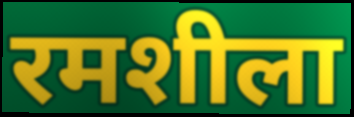
रमशीला